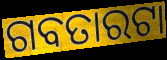
ଗବତାରଟା